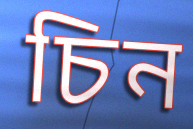
চিন